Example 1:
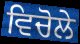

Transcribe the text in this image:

ਵਿਚੋਲੇ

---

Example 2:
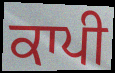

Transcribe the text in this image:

ਕਾਪੀ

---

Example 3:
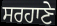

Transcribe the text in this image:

ਸਰਹਾਣੇ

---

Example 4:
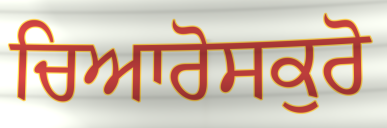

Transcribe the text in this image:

ਚਿਆਰੋਸਕੁਰੋ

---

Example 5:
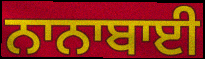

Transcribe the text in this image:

ਨਾਨਾਬਾਈ